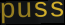
puss